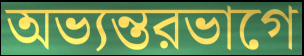
অভ্যন্তরভাগে